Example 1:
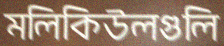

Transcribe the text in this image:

মলিকিউলগুলি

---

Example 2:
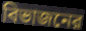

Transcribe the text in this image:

বিভাজনের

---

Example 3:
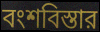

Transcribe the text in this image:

বংশবিস্তার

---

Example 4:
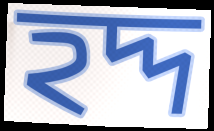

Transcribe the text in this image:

হদ্দ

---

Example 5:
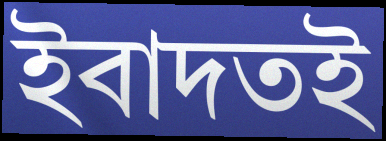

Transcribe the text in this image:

ইবাদতই